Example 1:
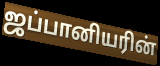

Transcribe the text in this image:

ஜப்பானியரின்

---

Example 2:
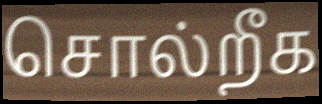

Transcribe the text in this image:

சொல்றீக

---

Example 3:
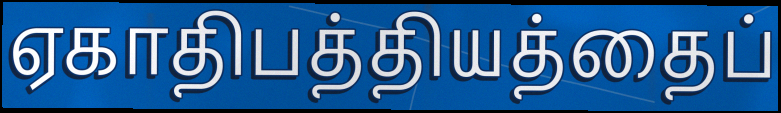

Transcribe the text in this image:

ஏகாதிபத்தியத்தைப்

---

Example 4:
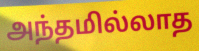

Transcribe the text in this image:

அந்தமில்லாத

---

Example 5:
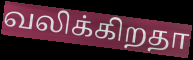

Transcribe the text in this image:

வலிக்கிறதா